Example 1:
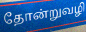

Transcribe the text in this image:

தோன்றுவழி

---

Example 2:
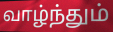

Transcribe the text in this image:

வாழ்ந்தும்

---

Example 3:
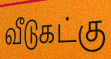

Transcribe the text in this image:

வீடுகட்கு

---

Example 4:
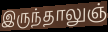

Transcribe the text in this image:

இருந்தாலுஞ்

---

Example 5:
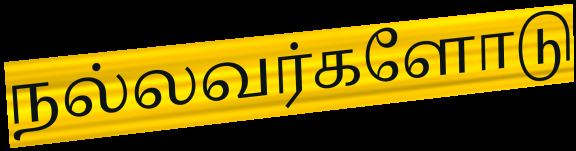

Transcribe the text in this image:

நல்லவர்களோடு